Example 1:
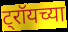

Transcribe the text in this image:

ट्रॉयच्या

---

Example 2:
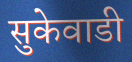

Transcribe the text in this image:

सुकेवाडी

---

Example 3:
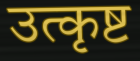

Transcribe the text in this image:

उत्कृष्ट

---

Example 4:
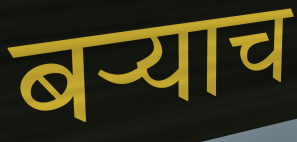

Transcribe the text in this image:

बर्‍याच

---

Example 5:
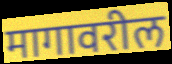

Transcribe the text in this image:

मागावरील